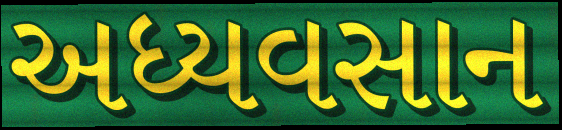
અધ્યવસાન